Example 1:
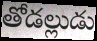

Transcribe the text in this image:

తోడల్లుడు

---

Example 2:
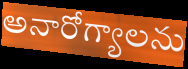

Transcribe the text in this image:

అనారోగ్యాలను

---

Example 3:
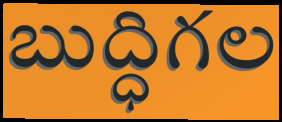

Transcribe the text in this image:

బుద్ధిగల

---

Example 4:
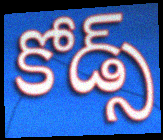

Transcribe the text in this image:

కోడ్స్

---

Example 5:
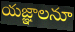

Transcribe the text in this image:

యజ్ఞాలనూ